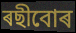
ৰছীবোৰ